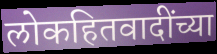
लोकहितवादींच्या